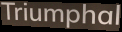
Triumphal